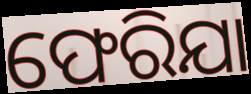
ଫେରିଯା